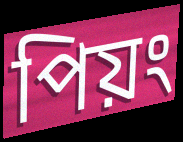
পিয়ং